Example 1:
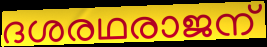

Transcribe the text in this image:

ദശരഥരാജന്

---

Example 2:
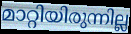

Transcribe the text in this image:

മാറ്റിയിരുന്നില്ല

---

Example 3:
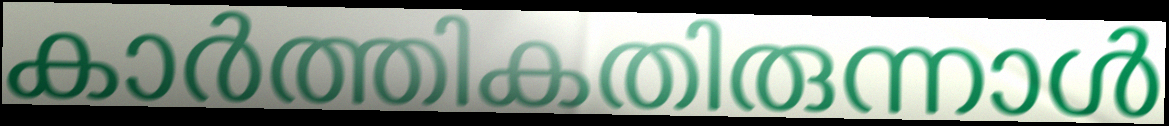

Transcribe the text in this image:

കാർത്തികതിരുന്നാൾ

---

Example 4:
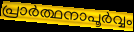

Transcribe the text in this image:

പ്രാർത്ഥനാപൂർവ്വം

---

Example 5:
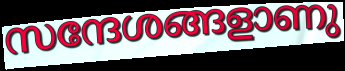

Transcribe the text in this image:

സന്ദേശങ്ങളാണു